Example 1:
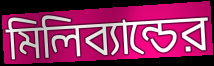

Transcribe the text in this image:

মিলিব্যান্ডের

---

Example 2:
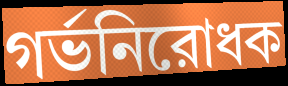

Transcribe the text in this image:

গর্ভনিরোধক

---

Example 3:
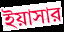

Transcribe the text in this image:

ইয়াসার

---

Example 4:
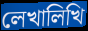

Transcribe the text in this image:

লেখালিখি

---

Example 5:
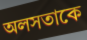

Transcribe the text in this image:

অলসতাকে